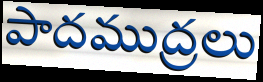
పాదముద్రలు